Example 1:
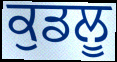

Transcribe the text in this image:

ਕੁਡਲੂ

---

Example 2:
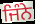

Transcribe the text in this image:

ਜਿੰਨੇ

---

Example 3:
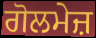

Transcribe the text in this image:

ਗੋਲਮੇਜ਼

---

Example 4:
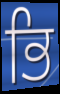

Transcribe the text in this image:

ਭਿ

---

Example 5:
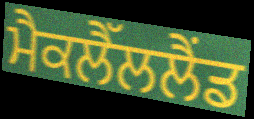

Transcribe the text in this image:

ਮੈਕਲੈੱਲਲੈਂਡ